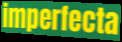
imperfecta